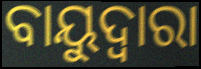
ବାୟୁଦ୍ୱାରା